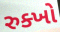
રુક્ખો